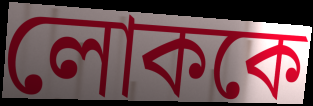
লোককে